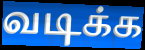
வடிக்க